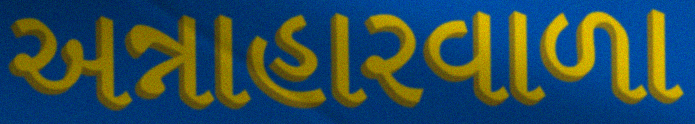
અન્નાહારવાળા